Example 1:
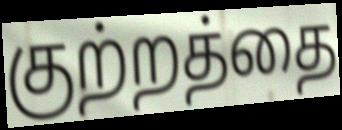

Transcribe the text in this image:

குற்றத்தை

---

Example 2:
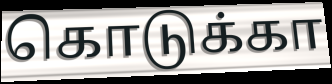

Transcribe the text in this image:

கொடுக்கா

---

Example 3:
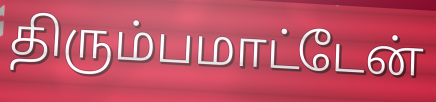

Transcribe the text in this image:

திரும்பமாட்டேன்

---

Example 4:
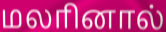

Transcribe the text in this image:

மலரினால்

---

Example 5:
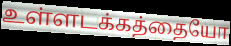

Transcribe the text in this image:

உள்ளடக்கத்தையோ